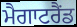
ਮੈਗਾਟਰੈਂਡ